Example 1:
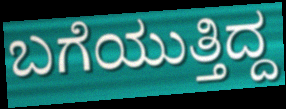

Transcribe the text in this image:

ಬಗೆಯುತ್ತಿದ್ದ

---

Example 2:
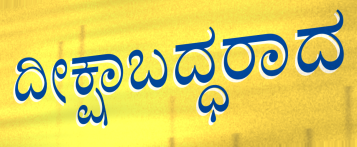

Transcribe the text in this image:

ದೀಕ್ಷಾಬದ್ಧರಾದ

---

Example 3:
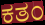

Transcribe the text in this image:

ಕತಂ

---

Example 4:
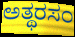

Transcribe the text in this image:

ಅತ್ಥರಸಂ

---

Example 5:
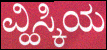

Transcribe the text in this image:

ವ್ಹಿಸ್ಕಿಯ